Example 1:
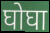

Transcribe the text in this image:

घोघा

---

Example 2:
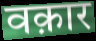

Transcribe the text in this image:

वक़ार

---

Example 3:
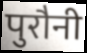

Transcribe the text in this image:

पुरौनी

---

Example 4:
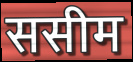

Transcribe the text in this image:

ससीम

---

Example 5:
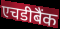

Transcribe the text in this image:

एचडीबैंक